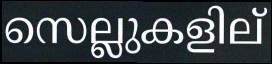
സെല്ലുകളില്